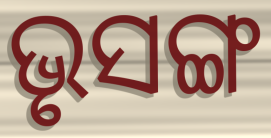
ଭୃସଙ୍ଗ